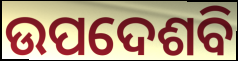
ଉପଦେଶବି